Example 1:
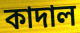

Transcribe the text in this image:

কাদাল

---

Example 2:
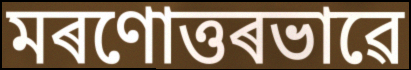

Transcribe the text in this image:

মৰণোত্তৰভাৱে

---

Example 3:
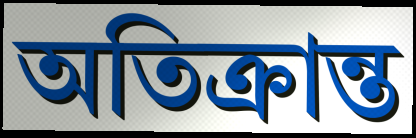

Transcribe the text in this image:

অতিক্ৰান্ত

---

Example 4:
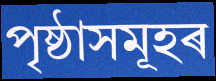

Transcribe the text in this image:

পৃষ্ঠাসমূহৰ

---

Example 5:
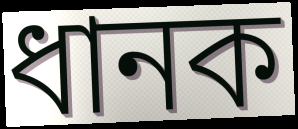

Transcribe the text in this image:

ধানক